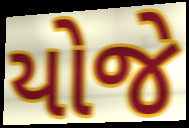
યોજે